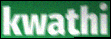
kwathi